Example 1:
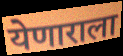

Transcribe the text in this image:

येणाराला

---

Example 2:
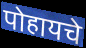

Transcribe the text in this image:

पोहायचे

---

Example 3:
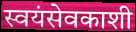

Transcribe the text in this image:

स्वयंसेवकाशी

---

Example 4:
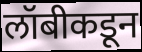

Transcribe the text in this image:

लॉबीकडून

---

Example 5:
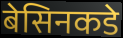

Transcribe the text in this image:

बेसिनकडे